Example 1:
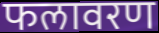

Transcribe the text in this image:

फलावरण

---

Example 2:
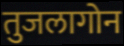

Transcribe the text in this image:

तुजलागोन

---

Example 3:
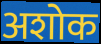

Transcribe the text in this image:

अशोक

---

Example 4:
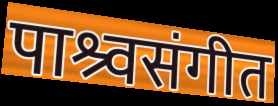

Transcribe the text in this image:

पाश्र्वसंगीत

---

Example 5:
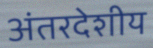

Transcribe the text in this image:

अंतरदेशीय